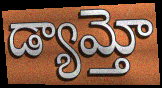
డ్యామ్తో